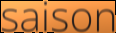
saison